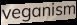
veganism